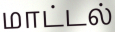
மாட்டல்